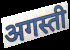
अगस्ती